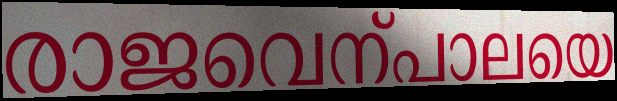
രാജവെന്പാലയെ